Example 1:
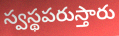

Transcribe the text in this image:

స్వస్థపరుస్తారు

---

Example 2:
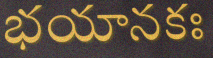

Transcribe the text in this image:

భయానకః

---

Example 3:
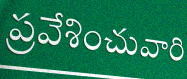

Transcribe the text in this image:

ప్రవేశించువారి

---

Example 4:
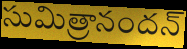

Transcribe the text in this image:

సుమిత్రానందన్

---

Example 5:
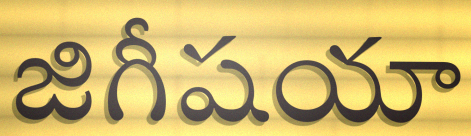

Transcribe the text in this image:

జిగీషయా